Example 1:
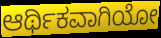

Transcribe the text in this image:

ಆರ್ಥಿಕವಾಗಿಯೋ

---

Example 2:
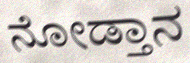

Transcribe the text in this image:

ನೋಡ್ತಾನ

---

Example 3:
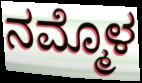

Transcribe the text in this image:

ನಮ್ಮೊಳ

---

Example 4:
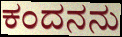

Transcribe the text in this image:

ಕಂದನನು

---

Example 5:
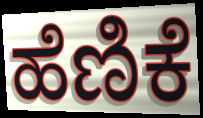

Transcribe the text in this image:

ಹೆಣಿಕೆ